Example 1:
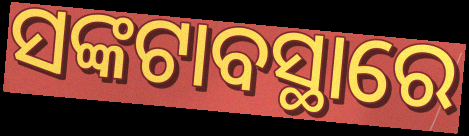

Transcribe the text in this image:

ସଙ୍କଟାବସ୍ଥାରେ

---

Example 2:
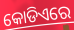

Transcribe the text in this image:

କୋଡିଏରେ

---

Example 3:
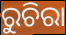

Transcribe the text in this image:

ରୁଚିରା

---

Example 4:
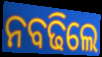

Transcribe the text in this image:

ନବଢିଲେ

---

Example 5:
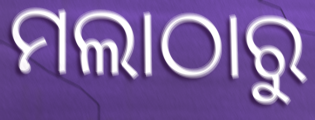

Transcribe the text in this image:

ମଲାଠାରୁ